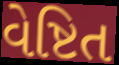
વેષ્ટિત